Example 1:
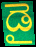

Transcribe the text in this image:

డై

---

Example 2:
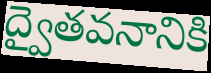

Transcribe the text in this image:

ద్వైతవనానికి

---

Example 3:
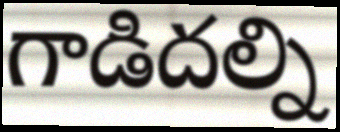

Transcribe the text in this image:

గాడిదల్ని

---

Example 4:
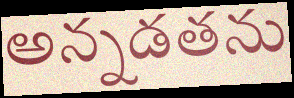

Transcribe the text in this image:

అన్నడతను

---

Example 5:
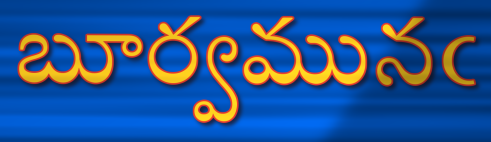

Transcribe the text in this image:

బూర్వమునఁ